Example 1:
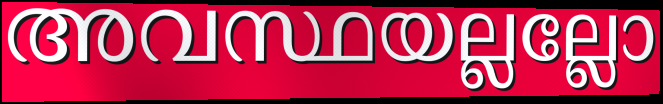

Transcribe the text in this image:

അവസ്ഥയല്ലല്ലോ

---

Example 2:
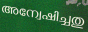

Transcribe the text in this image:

അന്വേഷിച്ചതു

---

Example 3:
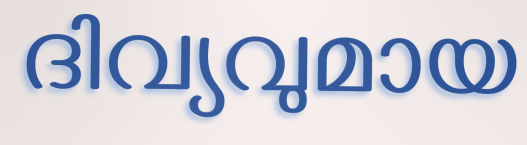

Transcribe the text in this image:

ദിവ്യവുമായ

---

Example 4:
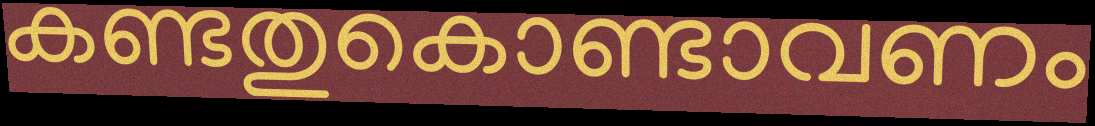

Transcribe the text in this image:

കണ്ടതുകൊണ്ടാവണം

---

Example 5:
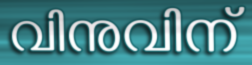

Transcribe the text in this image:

വിനുവിന്